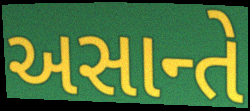
અસાન્તે